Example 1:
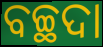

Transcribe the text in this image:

ବଚ୍ଛଦା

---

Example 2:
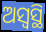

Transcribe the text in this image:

ଅସ୍ୱସ୍ଥି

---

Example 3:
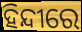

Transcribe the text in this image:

ହିନ୍ଦୀରେ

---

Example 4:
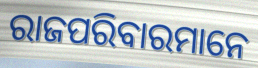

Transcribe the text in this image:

ରାଜପରିବାରମାନେ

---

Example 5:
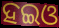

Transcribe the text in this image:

ହଇଓ